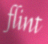
flint